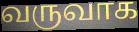
வருவாக